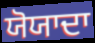
ਯੋਯਾਦਾ